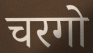
चरगो